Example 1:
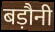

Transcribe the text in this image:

बड़ौनी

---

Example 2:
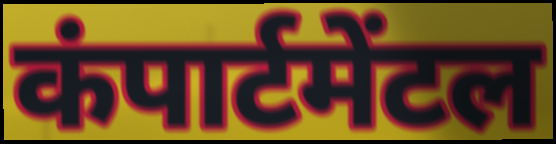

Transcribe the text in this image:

कंपार्टमेंटल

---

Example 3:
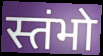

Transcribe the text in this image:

स्तंभो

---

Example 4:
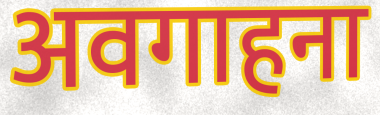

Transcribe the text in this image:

अवगाहना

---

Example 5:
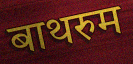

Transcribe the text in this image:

बाथरुम